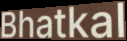
Bhatkal